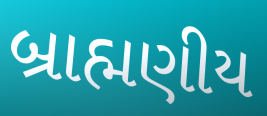
બ્રાહ્મણીય